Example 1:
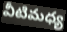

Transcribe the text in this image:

వీటిమధ్య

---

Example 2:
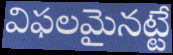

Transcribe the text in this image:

విఫలమైనట్టే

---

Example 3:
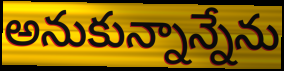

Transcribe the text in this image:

అనుకున్నాన్నేను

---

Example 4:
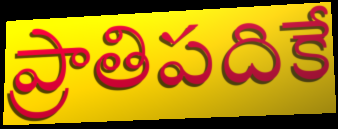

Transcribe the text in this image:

ప్రాతిపదికే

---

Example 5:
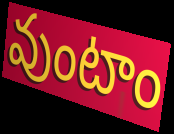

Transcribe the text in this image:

వుంటాం